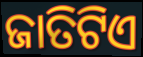
ଜାତିଟିଏ